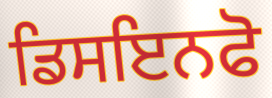
ਡਿਸਇਨਫੋ